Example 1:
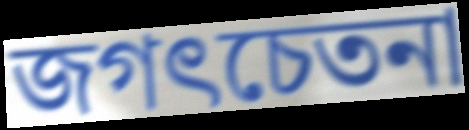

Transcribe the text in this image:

জগৎচেতনা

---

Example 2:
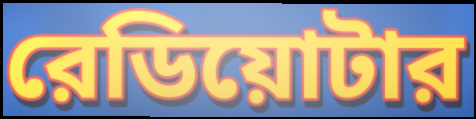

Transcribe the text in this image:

রেডিয়োটার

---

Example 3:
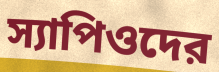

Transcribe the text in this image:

স্যাপিওদের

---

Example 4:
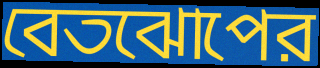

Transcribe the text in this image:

বেতঝোপের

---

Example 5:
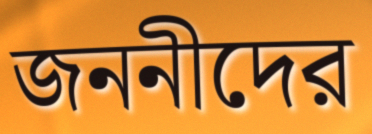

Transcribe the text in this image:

জননীদের